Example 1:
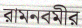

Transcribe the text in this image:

রামনবমীর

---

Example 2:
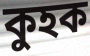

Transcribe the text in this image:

কুহক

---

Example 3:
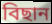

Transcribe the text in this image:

বিছান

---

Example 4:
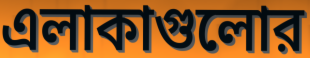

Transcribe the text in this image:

এলাকাগুলোর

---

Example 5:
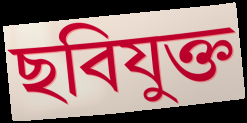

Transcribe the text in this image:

ছবিযুক্ত